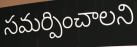
సమర్పించాలని